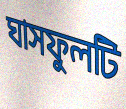
ঘাসফুলটি